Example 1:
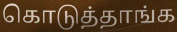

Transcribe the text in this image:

கொடுத்தாங்க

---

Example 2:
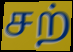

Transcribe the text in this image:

சற்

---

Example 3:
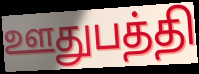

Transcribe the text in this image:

ஊதுபத்தி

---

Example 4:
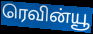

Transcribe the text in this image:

ரெவின்யூ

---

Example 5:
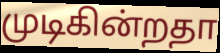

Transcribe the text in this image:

முடிகின்றதா